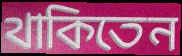
থাকিতেন